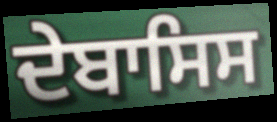
ਦੇਬਾਸਿਸ